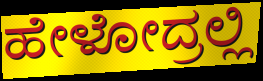
ಹೇಳೋದ್ರಲ್ಲಿ